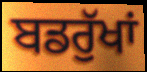
ਬਡਰੁੱਖਾਂ